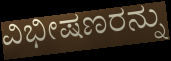
ವಿಭೀಷಣರನ್ನು